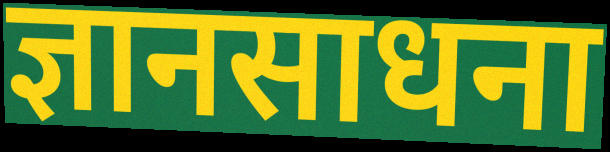
ज्ञानसाधना